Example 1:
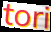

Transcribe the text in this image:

tori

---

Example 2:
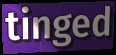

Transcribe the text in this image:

tinged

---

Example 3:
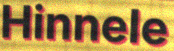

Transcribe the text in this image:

Hinnele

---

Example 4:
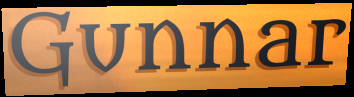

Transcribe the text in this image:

Gunnar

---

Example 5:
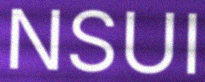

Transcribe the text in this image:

NSUI